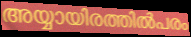
അയ്യായിരത്തിൽപരം